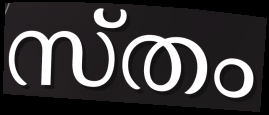
സ്തം